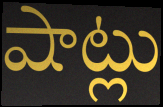
షాట్లు